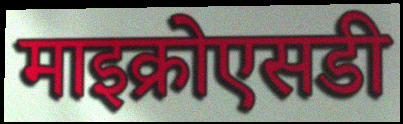
माइक्रोएसडी